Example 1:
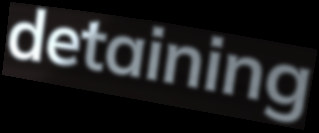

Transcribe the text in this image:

detaining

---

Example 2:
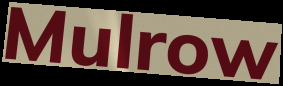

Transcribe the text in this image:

Mulrow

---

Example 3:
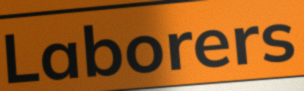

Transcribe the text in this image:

Laborers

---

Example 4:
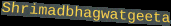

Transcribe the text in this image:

Shrimadbhagwatgeeta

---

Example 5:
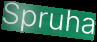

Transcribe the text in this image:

Spruha